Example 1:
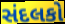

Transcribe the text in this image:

સંદલકો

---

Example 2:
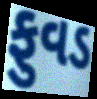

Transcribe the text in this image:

ફુવડ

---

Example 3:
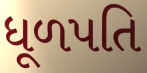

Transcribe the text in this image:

ધૂળપતિ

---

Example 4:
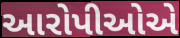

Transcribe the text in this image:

આરોપીઓએ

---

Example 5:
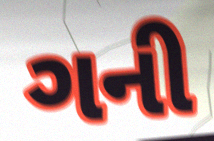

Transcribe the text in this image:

ગની